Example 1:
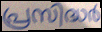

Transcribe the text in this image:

പ്രസിദ്ധർ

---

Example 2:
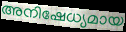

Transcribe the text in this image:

അനിഷേധ്യമായ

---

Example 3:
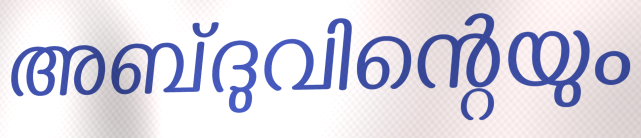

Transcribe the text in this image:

അബ്ദുവിന്റെയും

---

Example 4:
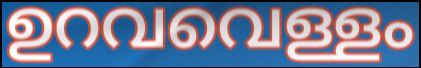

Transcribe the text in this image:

ഉറവവെള്ളം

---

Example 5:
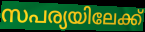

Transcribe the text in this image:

സപര്യയിലേക്ക്